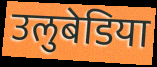
उलुबेडिया